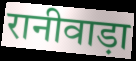
रानीवाड़ा